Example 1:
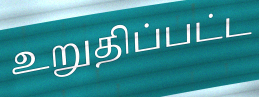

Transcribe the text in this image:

உறுதிப்பட்ட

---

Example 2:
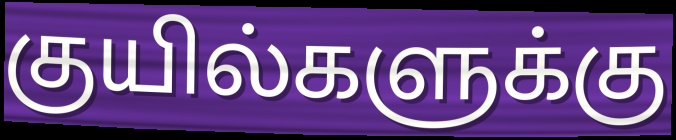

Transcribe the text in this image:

குயில்களுக்கு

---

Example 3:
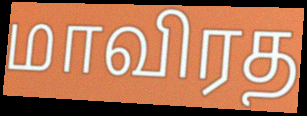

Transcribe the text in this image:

மாவிரத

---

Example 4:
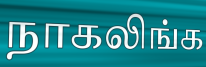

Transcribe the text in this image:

நாகலிங்க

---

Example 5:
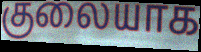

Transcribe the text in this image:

குலையாக